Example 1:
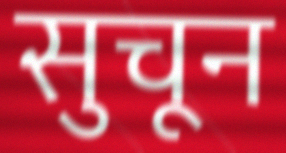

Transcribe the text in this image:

सुचून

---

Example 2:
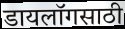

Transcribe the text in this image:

डायलॉगसाठी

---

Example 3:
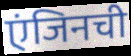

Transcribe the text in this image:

एंजिनची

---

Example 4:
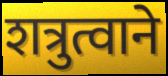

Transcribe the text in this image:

शत्रुत्वाने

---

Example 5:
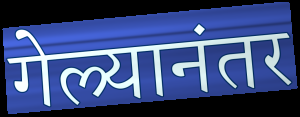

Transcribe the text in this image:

गेल्यानंतर